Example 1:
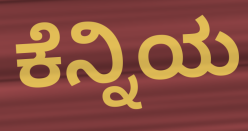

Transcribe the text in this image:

ಕೆನ್ನಿಯ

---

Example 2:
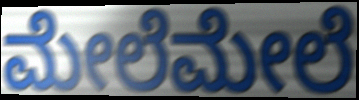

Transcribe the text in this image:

ಮೇಲೆಮೇಲೆ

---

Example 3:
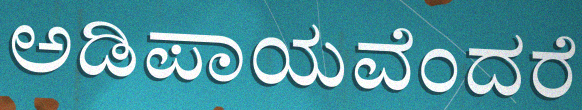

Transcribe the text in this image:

ಅಡಿಪಾಯವೆಂದರೆ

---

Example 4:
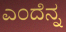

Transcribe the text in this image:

ಎಂದೆನ್ನ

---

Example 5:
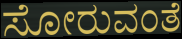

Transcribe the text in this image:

ಸೋರುವಂತೆ